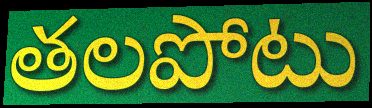
తలపోటు